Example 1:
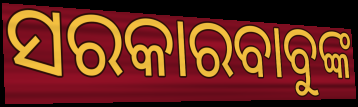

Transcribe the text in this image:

ସରକାରବାବୁଙ୍କ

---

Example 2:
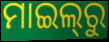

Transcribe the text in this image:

ମାଇଲ୍‌ରୁ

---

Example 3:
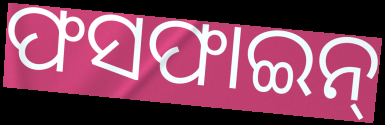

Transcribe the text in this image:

ଫସଫାଇନ୍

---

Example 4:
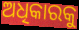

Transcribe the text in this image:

ଅଧିକାରକୁ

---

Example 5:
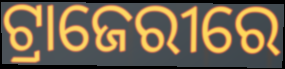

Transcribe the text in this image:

ଟ୍ରାଜେରୀରେ